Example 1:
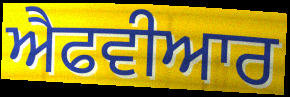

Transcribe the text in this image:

ਐਫਵੀਆਰ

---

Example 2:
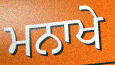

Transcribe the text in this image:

ਮਨਾਖੇ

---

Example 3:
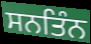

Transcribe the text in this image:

ਸਨਤਿੰਨ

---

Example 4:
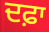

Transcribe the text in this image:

ਦਫ਼ਾ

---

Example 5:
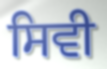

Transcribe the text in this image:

ਸਿਵੀ